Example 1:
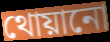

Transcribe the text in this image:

থোয়ানো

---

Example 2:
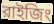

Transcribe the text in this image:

রাইজিং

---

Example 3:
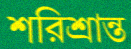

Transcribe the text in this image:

শরিশ্রান্ত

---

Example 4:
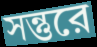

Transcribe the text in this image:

সন্তুরে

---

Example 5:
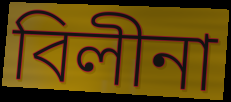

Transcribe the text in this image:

বিলীনা